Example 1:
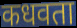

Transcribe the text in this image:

कधवता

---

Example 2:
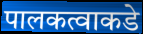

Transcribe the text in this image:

पालकत्वाकडे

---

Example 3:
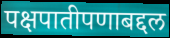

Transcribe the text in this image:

पक्षपातीपणाबद्दल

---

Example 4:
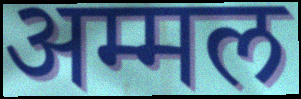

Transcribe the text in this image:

अम्मल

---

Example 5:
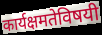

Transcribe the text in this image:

कार्यक्षमतेविषयी